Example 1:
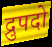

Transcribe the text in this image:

द्रुपदो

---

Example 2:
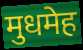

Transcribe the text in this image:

मुधमेह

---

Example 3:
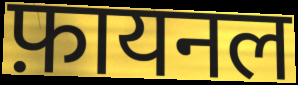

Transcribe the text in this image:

फ़ायनल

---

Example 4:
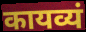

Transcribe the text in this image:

कायव्यं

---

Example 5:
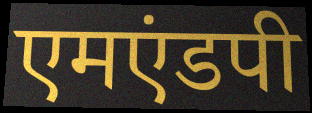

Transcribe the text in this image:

एमएंडपी